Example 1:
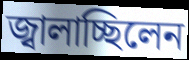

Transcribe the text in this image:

জ্বালাচ্ছিলেন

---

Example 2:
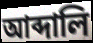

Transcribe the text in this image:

আব্দালি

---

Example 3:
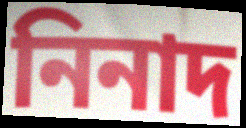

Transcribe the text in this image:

নিনাদ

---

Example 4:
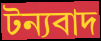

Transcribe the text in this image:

টন্যবাদ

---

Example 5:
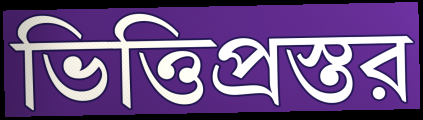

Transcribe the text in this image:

ভিত্তিপ্রস্তর